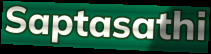
Saptasathi